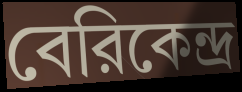
বেরিকেন্দ্র